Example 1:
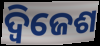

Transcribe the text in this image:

ଦ୍ୱିଜେଶ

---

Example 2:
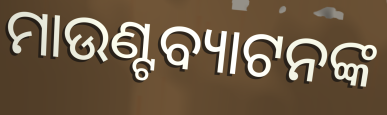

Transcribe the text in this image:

ମାଉଣ୍ଟବ୍ୟାଟନଙ୍କ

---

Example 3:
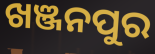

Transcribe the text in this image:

ଖଞ୍ଜନପୁର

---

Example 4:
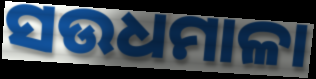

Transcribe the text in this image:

ସଉଧମାଳା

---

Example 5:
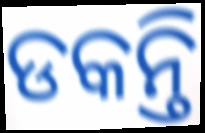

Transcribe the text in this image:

ଡକନ୍ତି